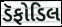
ડૅફોડિલ